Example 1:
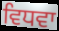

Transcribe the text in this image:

ਵਿਧਵਾ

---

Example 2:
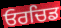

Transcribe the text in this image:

ਓਰਚਿਡ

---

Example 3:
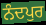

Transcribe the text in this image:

ਨੰਦਪੁਰ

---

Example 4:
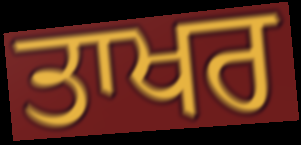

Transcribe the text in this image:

ਤਾਖਰ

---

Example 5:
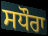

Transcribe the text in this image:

ਸਧੌਰਾ